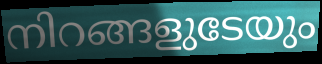
നിറങ്ങളുടേയും